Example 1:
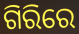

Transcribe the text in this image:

ଗିରିରେ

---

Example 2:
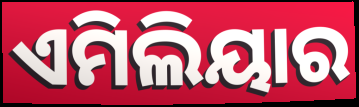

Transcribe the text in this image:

ଏମିଲିୟାର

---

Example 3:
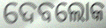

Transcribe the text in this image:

ଦେବଲୋକ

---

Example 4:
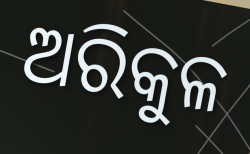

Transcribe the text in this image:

ଅରିକୁଳ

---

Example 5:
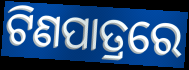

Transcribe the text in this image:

ଟିଣପାତ୍ରରେ